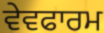
ਵੇਵਫਾਰਮ